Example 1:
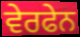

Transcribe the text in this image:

ਵੇਰਫੇਨ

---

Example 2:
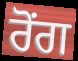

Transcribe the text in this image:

ਰੋਂਗ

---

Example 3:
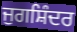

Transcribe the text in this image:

ਜੁਗਸ਼ਿੰਦਰ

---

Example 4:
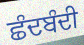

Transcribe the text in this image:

ਛੰਦਬੰਦੀ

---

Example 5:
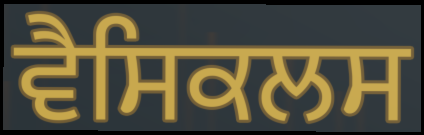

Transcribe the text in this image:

ਵੈਸਿਕਲਸ